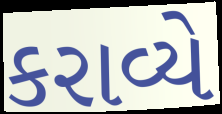
કરાવ્યે